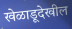
खेळाडूदेखील